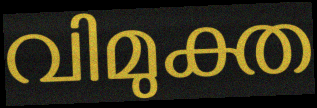
വിമുക്ത